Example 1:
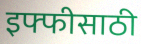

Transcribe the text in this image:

इफ्फीसाठी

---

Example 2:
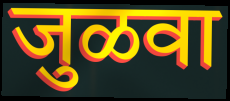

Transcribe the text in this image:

जुळवा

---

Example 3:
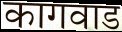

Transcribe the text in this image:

कागवाड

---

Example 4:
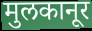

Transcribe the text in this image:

मुलकानूर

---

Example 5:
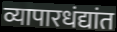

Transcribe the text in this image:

व्यापारधंद्यांत